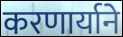
करणार्याने